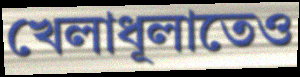
খেলাধূলাতেও